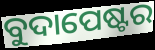
ବୁଦାପେଷ୍ଟର